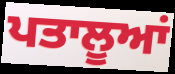
ਪਤਾਲੂਆਂ